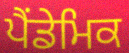
ਪੈਂਡੇਮਿਕ